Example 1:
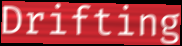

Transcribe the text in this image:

Drifting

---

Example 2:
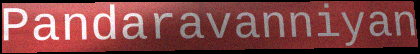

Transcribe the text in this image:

Pandaravanniyan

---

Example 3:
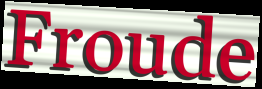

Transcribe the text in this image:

Froude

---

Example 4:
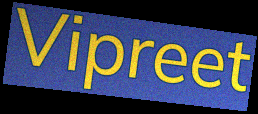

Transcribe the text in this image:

Vipreet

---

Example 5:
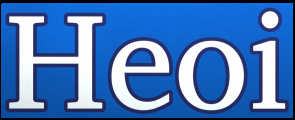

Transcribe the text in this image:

Heoi